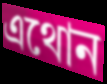
এথোন